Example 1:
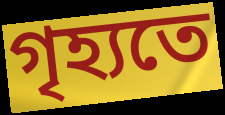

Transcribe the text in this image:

গৃহ্যতে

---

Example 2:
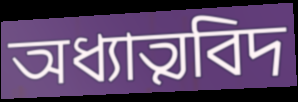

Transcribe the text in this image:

অধ্যাত্মবিদ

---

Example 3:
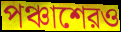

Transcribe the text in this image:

পঞ্চাশেরও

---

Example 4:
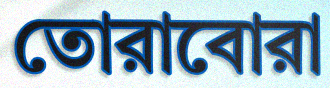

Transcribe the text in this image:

তোরাবোরা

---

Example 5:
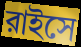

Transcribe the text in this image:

রাইসে